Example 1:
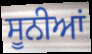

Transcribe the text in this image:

ਸੂਨੀਆਂ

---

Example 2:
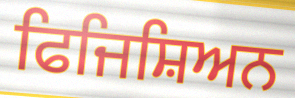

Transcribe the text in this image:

ਫਿਜਿਸ਼ਿਅਨ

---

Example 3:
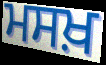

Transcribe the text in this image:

ਮਸਖ਼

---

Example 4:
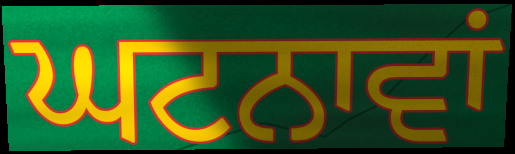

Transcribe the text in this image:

ਘਟਨਾਵਾਂ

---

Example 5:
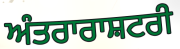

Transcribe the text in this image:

ਅੰਤਰਾਰਾਸ਼ਟਰੀ